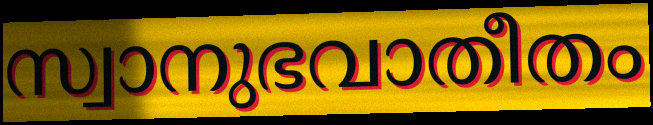
സ്വാനുഭവാതീതം